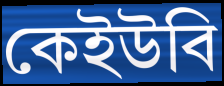
কেইউবি